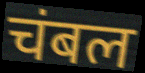
चंबल